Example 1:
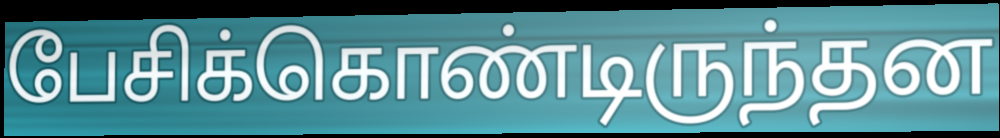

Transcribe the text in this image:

பேசிக்கொண்டிருந்தன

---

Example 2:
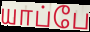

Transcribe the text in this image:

யாப்பே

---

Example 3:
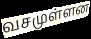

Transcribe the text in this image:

வசமுள்ளன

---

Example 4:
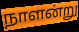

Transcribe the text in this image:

நாளன்று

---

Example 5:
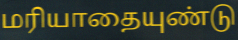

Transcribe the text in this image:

மரியாதையுண்டு